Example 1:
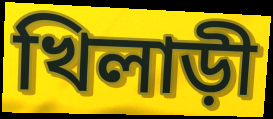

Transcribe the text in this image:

খিলাড়ী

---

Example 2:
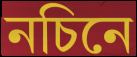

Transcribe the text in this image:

নচিনে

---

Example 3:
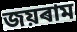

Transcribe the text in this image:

জয়ৰাম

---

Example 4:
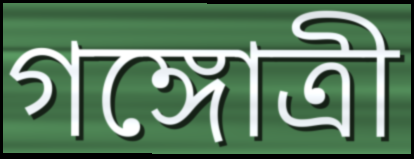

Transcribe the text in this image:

গঙ্গোত্ৰী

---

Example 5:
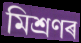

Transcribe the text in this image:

মিশ্ৰণৰ